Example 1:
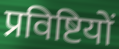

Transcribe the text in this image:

प्रविष्टियों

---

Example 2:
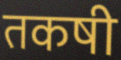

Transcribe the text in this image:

तकषी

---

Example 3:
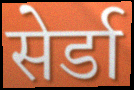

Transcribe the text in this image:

सेर्डा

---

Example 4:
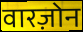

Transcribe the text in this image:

वारज़ोन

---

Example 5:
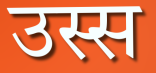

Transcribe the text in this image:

उस्स